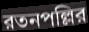
রতনপল্লির